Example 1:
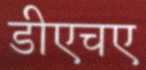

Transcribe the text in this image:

डीएचए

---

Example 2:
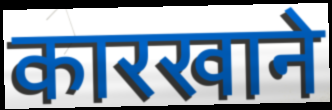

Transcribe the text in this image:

कारखाने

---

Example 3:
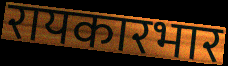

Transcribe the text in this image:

रायकारभार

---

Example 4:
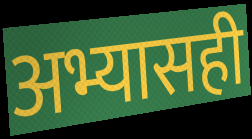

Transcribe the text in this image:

अभ्यासही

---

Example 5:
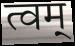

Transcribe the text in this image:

त्वम्